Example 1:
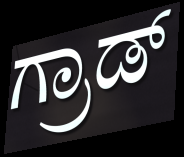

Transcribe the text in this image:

ಗ್ರಾಡ್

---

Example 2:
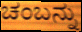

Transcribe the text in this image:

ಚಂಬನ್ನು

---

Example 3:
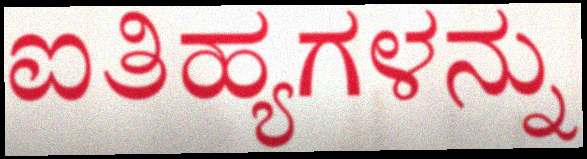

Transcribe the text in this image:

ಐತಿಹ್ಯಗಳನ್ನು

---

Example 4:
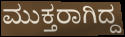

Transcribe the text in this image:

ಮುಕ್ತರಾಗಿದ್ದ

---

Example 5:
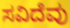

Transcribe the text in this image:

ಸವಿದೆವು